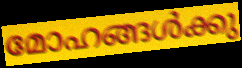
മോഹങ്ങൾക്കു